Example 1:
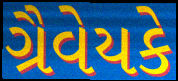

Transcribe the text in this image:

ગ્રૈવેયકે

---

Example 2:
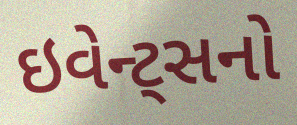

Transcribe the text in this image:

ઇવેન્ટ્સનો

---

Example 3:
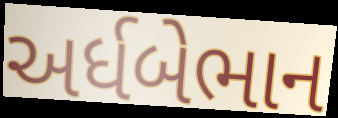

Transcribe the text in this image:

અર્ધબેભાન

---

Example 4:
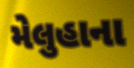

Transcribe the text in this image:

મેલુહાના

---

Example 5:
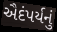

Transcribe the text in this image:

ઐદંપર્યનું